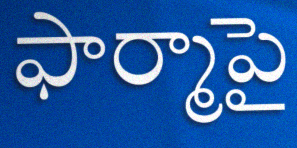
ఫార్మాపై